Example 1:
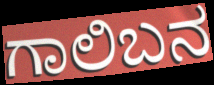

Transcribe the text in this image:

ಗಾಲಿಬನ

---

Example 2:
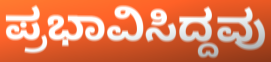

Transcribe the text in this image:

ಪ್ರಭಾವಿಸಿದ್ದವು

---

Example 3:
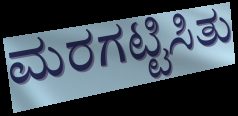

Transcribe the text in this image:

ಮರಗಟ್ಟಿಸಿತು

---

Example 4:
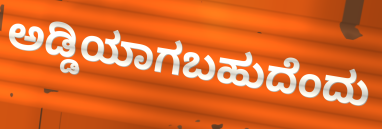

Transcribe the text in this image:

ಅಡ್ಡಿಯಾಗಬಹುದೆಂದು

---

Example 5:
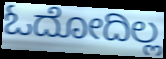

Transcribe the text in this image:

ಓದೋದಿಲ್ಲ